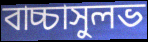
বাচ্চাসুলভ